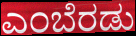
ಎಂಬೆರಡು